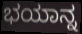
ಭಯಾನ್ನ